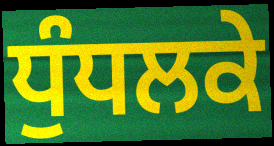
ਧੁੰਧਲਕੇ